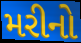
મરીનો